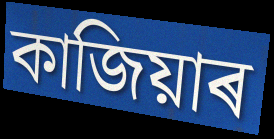
কাজিয়াৰ